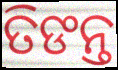
ତିଙନ୍ତ